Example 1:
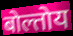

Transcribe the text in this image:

बोल्तोय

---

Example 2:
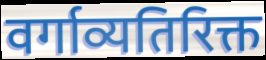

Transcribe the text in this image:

वर्गाव्यतिरिक्त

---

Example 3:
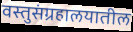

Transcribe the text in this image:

वस्तुसंग्रहालयातील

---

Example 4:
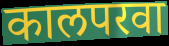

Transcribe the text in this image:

कालपरवा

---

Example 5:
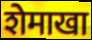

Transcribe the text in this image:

शेमाखा